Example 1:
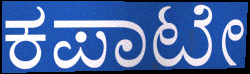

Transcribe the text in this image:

ಕಪಾಟೇ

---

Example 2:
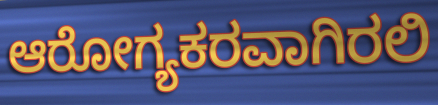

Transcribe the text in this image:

ಆರೋಗ್ಯಕರವಾಗಿರಲಿ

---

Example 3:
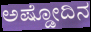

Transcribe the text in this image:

ಅಷ್ಡೋದಿನ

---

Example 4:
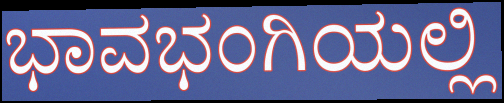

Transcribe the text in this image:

ಭಾವಭಂಗಿಯಲ್ಲಿ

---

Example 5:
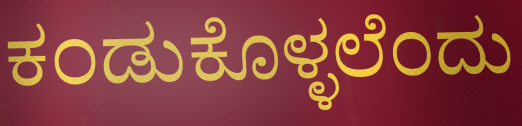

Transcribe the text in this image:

ಕಂಡುಕೊಳ್ಳಲೆಂದು